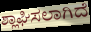
ಶ್ಲಾಘಿಸಲಾಗಿದೆ